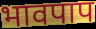
भावपाप